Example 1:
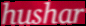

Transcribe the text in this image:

hushar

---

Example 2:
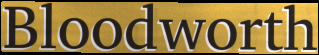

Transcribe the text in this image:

Bloodworth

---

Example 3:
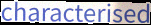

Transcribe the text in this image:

characterised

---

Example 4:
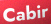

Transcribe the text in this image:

Cabir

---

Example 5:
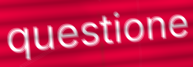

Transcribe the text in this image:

questione